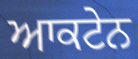
ਆਕਟੇਨ